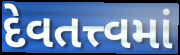
દેવતત્ત્વમાં